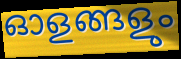
ഓളങ്ങളും